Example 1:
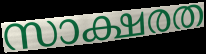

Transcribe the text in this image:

സാക്ഷരത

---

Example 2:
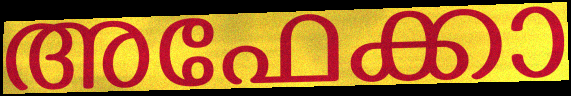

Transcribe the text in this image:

അഫേക്കാ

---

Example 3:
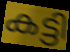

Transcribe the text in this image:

കട്ടി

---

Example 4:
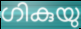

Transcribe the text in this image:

ഗികുയു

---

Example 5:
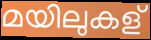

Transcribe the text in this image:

മയിലുകള്